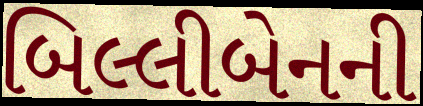
બિલ્લીબેનની